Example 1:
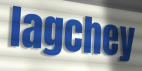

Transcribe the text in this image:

lagchey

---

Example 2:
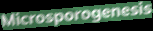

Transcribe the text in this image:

Microsporogenesis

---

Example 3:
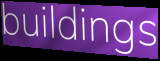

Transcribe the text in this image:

buildings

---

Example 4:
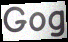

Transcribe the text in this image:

Gog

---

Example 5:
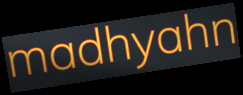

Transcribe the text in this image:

madhyahn